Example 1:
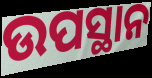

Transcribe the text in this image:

ଉପସ୍ଥାନ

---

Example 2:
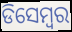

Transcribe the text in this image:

ଡିସେମ୍ୱର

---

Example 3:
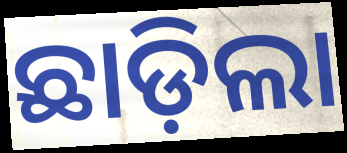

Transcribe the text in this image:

ଛାଡ଼ିଲା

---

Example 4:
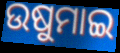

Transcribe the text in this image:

ଉଷୁମାଇ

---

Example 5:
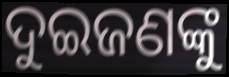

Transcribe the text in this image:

ଦୁଇଜଣଙ୍କୁ